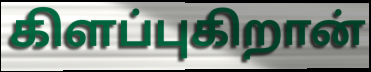
கிளப்புகிறான்